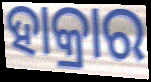
ହାକ୍ରାର